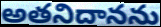
అతనిదానను